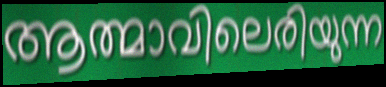
ആത്മാവിലെരിയുന്ന